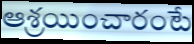
ఆశ్రయించారంటే